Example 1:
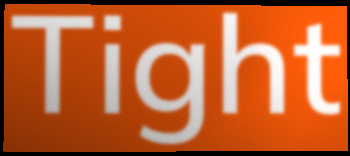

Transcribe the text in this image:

Tight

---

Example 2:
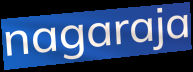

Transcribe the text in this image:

nagaraja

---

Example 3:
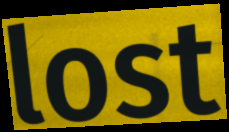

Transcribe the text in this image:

lost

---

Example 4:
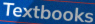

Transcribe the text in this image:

Textbooks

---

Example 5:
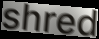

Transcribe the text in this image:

shred